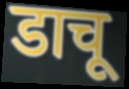
डाचू